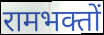
रामभक्तों